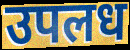
उपलध